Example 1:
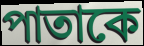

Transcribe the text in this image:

পাতাকে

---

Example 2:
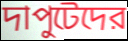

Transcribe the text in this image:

দাপুটেদের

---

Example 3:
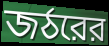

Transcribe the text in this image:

জঠরের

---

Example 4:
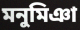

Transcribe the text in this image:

মনুমিঞা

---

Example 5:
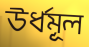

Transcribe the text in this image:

উর্ধমূল